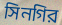
সিনগির